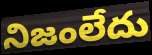
నిజంలేదు